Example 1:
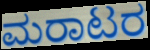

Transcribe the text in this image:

ಮರಾಟರ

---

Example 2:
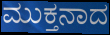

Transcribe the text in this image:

ಮುಕ್ತನಾದ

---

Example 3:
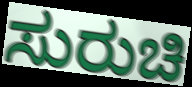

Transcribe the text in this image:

ಸುರುಚಿ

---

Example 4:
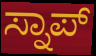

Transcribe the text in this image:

ಸ್ನಾಪ್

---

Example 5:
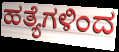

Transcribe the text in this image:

ಹತ್ಯೆಗಳಿಂದ